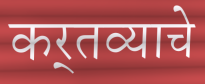
कर्तव्याचे